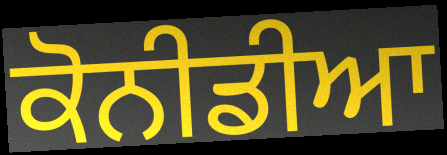
ਕੋਨੀਡੀਆ